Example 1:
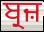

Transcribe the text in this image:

ਬ੍ਰਜ਼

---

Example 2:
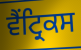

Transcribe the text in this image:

ਵੈਂਟ੍ਰਿਕਸ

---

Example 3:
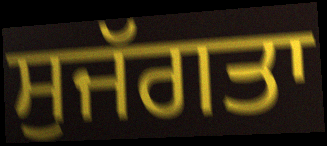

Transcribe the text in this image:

ਸੁਜੱਗਤਾ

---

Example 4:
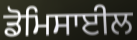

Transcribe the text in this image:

ਡੋਮਿਸਾਈਲ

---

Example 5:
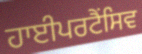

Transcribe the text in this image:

ਹਾਈਪਰਟੈਂਸਿਵ